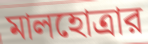
মালহোত্রার